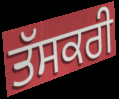
ਤੱਸਕਰੀ